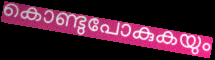
കൊണ്ടുപോകുകയും